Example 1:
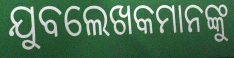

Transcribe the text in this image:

ଯୁବଲେଖକମାନଙ୍କୁ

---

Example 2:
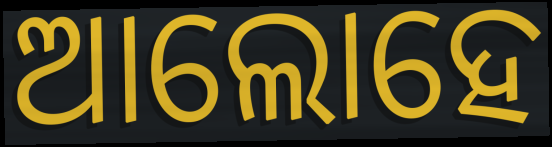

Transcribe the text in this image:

ଆଲୋହେ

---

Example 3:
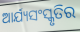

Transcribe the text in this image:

ଆର୍ଯ୍ୟସଂସ୍କୃତିର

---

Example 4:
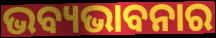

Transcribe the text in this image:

ଭବ୍ୟଭାବନାର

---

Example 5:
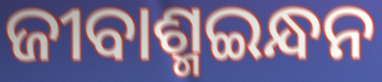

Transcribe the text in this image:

ଜୀବାଶ୍ମଇନ୍ଧନ